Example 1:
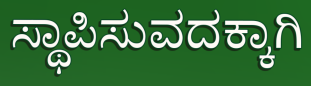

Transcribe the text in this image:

ಸ್ಥಾಪಿಸುವದಕ್ಕಾಗಿ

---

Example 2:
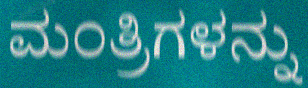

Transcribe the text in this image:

ಮಂತ್ರಿಗಳನ್ನು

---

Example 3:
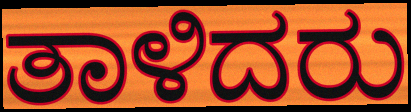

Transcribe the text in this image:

ತಾಳಿದರು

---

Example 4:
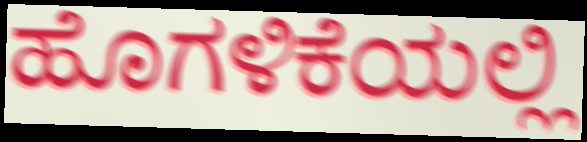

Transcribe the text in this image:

ಹೊಗಳಿಕೆಯಲ್ಲಿ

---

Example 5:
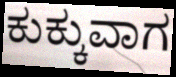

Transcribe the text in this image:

ಕುಕ್ಕುವಾಗ